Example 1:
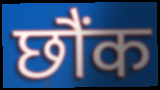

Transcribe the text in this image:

छौंक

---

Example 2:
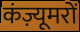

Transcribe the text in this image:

कंज़्यूमरों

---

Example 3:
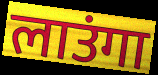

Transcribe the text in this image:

लाउंगा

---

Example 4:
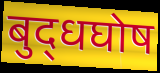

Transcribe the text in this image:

बुद्धघोष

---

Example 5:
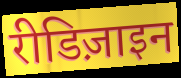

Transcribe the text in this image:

रीडिज़ाइन